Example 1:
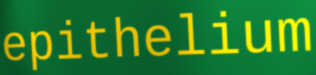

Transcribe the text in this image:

epithelium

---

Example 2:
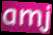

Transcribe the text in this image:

amj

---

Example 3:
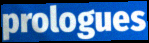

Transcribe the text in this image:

prologues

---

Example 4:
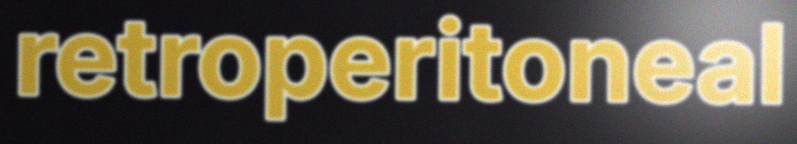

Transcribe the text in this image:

retroperitoneal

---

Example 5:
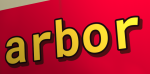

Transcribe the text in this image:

arbor